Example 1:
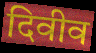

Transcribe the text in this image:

दिवीव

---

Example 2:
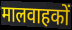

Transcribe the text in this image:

मालवाहकों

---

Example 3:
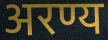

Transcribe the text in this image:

अरण्य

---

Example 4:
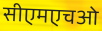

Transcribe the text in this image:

सीएमएचओ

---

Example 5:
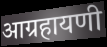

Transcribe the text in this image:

आग्रहायणी